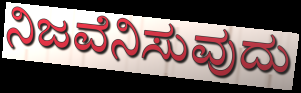
ನಿಜವೆನಿಸುವುದು